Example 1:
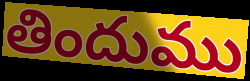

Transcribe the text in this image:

తిందుము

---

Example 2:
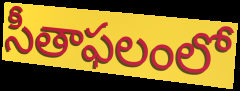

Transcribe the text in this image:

సీతాఫలంలో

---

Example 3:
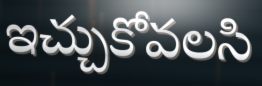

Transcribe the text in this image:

ఇచ్చుకోవలసి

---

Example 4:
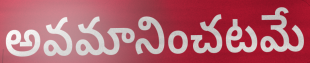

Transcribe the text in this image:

అవమానించటమే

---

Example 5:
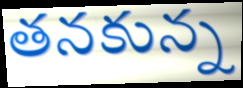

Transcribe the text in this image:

తనకున్న